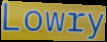
Lowry